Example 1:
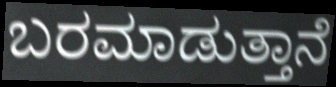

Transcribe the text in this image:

ಬರಮಾಡುತ್ತಾನೆ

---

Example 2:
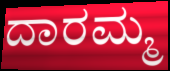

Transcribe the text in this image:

ದಾರಮ್ಮ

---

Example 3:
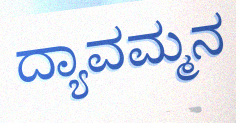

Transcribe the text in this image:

ದ್ಯಾವಮ್ಮನ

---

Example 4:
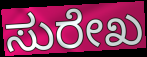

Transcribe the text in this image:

ಸುರೇಖ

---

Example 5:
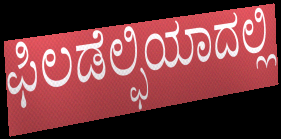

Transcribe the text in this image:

ಫಿಲಡೆಲ್ಫಿಯಾದಲ್ಲಿ